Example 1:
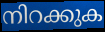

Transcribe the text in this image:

നിറക്കുക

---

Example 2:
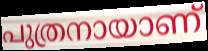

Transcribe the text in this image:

പുത്രനായാണ്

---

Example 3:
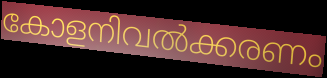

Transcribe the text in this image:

കോളനിവൽക്കരണം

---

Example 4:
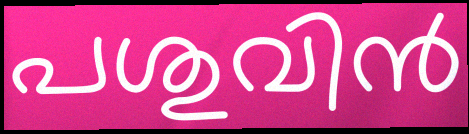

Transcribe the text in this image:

പശുവിൻ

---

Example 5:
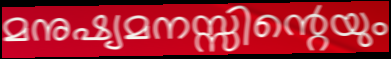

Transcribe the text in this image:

മനുഷ്യമനസ്സിന്റെയും